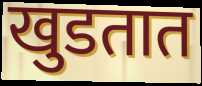
खुडतात